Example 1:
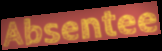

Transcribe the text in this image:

Absentee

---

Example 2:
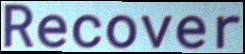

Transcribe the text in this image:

Recover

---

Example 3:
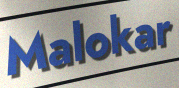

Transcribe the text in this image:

Malokar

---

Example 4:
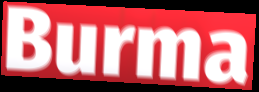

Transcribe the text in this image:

Burma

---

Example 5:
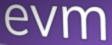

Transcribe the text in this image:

evm